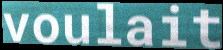
voulait